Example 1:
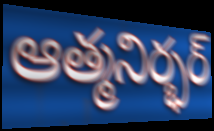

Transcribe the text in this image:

ఆత్మనిర్భర్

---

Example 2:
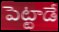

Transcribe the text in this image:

పెట్టాడే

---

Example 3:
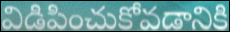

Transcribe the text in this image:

విడిపించుకోవడానికి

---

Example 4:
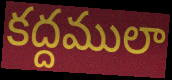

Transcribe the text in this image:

కద్దములా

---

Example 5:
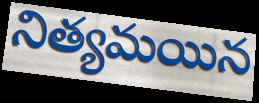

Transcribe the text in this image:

నిత్యమయిన